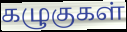
கழுகுகள்